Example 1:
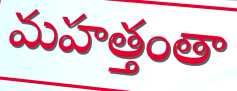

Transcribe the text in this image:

మహత్తంతా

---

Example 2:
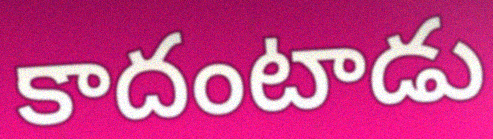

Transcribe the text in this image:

కాదంటాడు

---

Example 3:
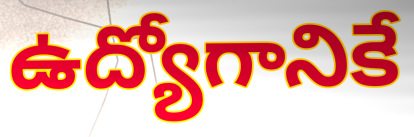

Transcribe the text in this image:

ఉద్యోగానికే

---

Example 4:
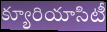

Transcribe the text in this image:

క్యూరియాసిటీ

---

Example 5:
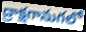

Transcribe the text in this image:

ద్రాక్షగానుగలో